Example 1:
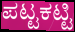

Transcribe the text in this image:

ಪಟ್ಟಕಟ್ಟಿ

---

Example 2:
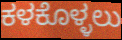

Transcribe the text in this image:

ಕಳಕೊಳ್ಳಲು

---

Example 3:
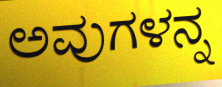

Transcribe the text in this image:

ಅವುಗಳನ್ನ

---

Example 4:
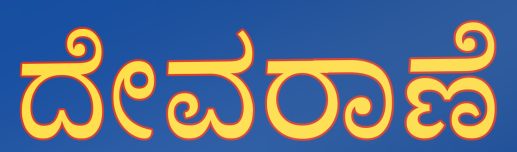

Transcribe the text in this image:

ದೇವರಾಣೆ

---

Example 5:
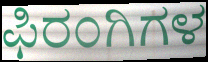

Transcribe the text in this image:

ಫಿರಂಗಿಗಳ